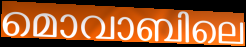
മൊവാബിലെ